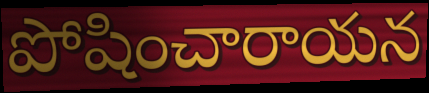
పోషించారాయన